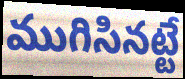
ముగిసినట్టే